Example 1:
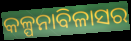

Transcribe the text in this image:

କଳ୍ପନାବିଳାସର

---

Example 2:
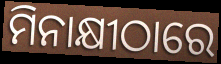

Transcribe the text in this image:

ମିନାକ୍ଷୀଠାରେ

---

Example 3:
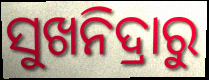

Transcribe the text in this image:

ସୁଖନିଦ୍ରାରୁ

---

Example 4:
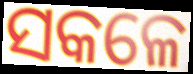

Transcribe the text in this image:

ସକଳେ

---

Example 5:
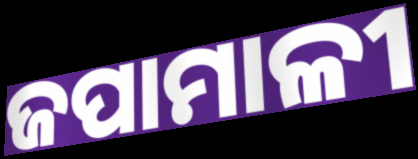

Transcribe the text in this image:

ଜପାମାଳୀ